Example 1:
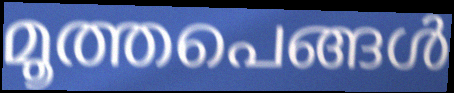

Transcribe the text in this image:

മൂത്തപെങ്ങൾ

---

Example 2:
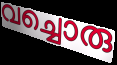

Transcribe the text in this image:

വച്ചൊരു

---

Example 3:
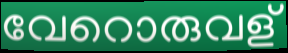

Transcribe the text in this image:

വേറൊരുവള്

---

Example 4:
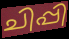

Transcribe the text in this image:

ചിപ്പി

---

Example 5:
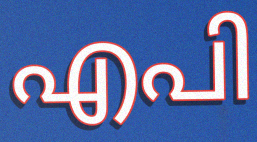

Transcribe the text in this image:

എപി